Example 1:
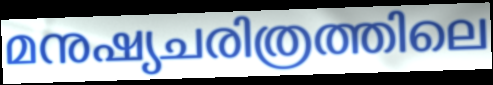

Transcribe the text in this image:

മനുഷ്യചരിത്രത്തിലെ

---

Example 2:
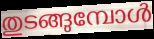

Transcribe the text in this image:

തുടങ്ങുമ്പോൾ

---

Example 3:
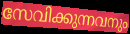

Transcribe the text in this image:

സേവിക്കുന്നവനും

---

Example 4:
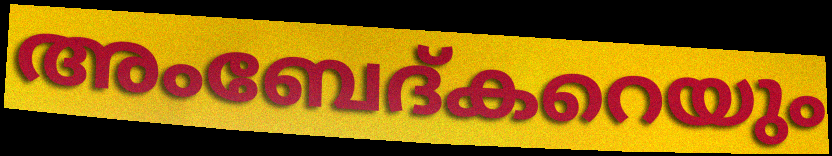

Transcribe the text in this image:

അംബേദ്കറെയും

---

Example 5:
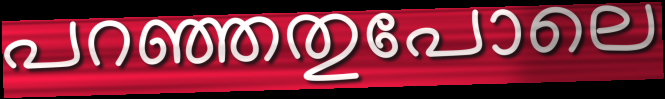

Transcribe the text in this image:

പറഞ്ഞതുപോലെ